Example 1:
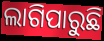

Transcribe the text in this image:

ଲାଗିପାରୁଛି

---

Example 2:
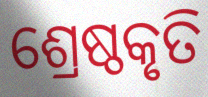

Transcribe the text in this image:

ଶ୍ରେଷ୍ଠକୃତି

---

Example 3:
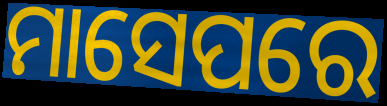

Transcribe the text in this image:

ମାସେପରେ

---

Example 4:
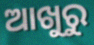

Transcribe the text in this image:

ଆଖୁରୁ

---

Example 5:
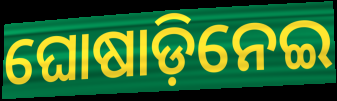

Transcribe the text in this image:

ଘୋଷାଡ଼ିନେଇ